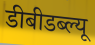
डीबीडब्ल्यू